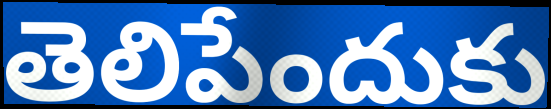
తెలిపేందుకు